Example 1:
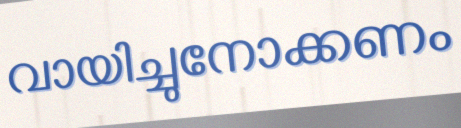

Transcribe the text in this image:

വായിച്ചുനോക്കണം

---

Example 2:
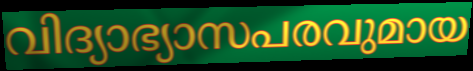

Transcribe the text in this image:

വിദ്യാഭ്യാസപരവുമായ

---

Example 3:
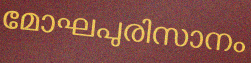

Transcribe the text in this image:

മോഘപുരിസാനം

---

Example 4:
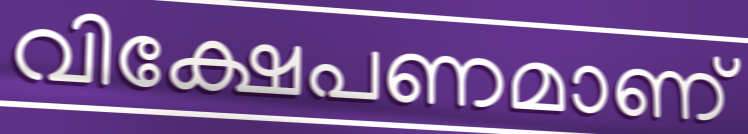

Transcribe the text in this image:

വിക്ഷേപണമാണ്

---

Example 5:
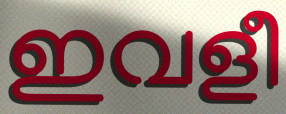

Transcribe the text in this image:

ഇവളീ